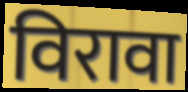
विरावा